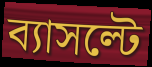
ব্যাসল্টে